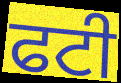
ਫਟੀ